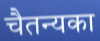
चैतन्यका